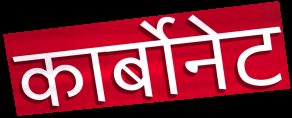
कार्बोनेट